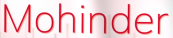
Mohinder